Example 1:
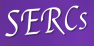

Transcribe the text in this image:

SERCs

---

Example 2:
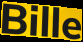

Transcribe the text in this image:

Bille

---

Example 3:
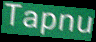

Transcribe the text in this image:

Tapnu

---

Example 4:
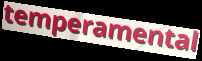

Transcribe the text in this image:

temperamental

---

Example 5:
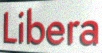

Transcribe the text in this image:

Libera